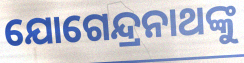
ଯୋଗେନ୍ଦ୍ରନାଥଙ୍କୁ